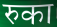
रुका